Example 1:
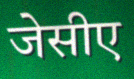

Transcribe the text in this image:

जेसीए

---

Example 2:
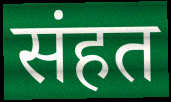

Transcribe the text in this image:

संहत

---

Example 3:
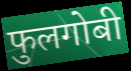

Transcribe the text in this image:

फुलगोबी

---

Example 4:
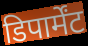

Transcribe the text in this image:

डिपार्मेंट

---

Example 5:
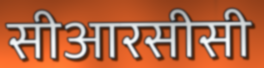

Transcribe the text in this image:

सीआरसीसी